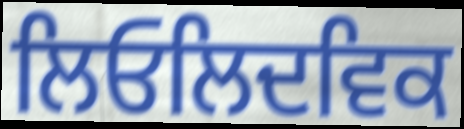
ਲਿਓਲਿਦਵਿਕ